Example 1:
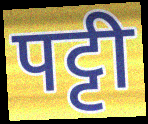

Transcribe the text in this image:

पट्टी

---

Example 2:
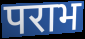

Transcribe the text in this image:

पराभ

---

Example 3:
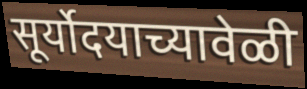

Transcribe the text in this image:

सूर्योदयाच्यावेळी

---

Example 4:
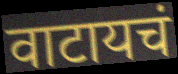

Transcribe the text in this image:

वाटायचं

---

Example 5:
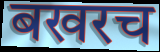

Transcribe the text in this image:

बखरच